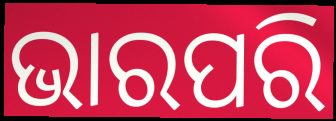
ଭାରପରି